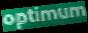
optimum